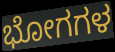
ಭೋಗಗಳ